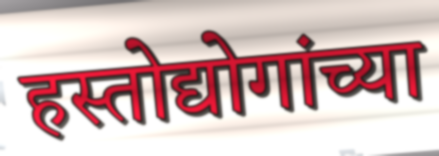
हस्तोद्योगांच्या